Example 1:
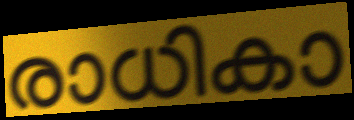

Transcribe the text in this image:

രാധികാ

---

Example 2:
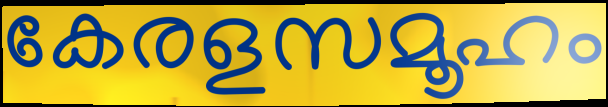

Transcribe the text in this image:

കേരളസമൂഹം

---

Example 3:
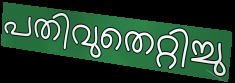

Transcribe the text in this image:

പതിവുതെറ്റിച്ചു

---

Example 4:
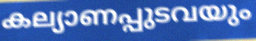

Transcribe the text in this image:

കല്യാണപ്പുടവയും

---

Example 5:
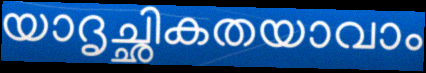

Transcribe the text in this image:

യാദൃച്ഛികതയാവാം